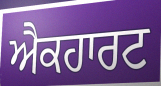
ਐਕਹਾਰਟ